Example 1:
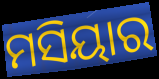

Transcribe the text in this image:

ମସିୟାର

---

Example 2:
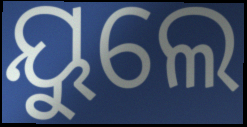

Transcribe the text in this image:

ୟୁଲେ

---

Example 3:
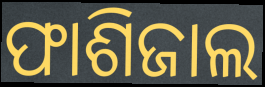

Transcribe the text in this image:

ଫାଶିଜାଲ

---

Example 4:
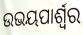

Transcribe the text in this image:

ଉଭୟପାର୍ଶ୍ୱର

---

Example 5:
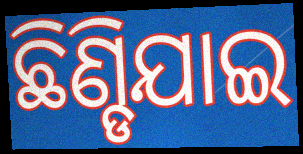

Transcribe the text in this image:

ଛିଣ୍ଡିଯାଇ